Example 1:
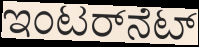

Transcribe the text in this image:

ಇಂಟರ್‌ನೆಟ್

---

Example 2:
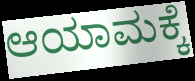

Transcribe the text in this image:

ಆಯಾಮಕ್ಕೆ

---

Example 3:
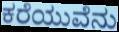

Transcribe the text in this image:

ಕರೆಯುವೆನು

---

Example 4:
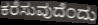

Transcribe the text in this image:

ಕರೆಸುವುದೆಂದು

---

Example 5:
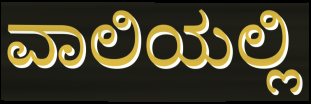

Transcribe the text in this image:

ವಾಲಿಯಲ್ಲಿ